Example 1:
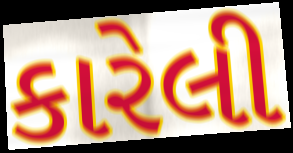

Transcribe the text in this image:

કારેલી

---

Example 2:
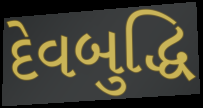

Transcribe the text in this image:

દેવબુદ્ધિ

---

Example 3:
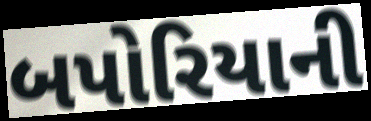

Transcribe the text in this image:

બપોરિયાની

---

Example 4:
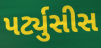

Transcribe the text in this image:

પર્ટ્યુસીસ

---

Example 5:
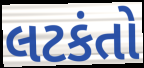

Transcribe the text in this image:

લટકંતો